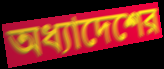
অধ্যাদেশের